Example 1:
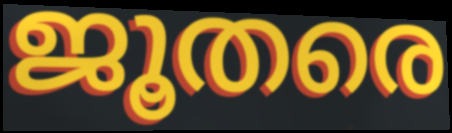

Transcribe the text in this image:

ജൂതരെ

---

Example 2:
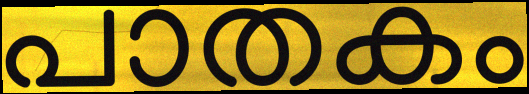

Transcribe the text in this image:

പാതകം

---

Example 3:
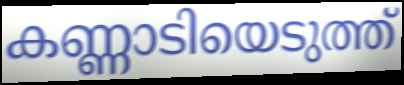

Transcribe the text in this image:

കണ്ണാടിയെടുത്ത്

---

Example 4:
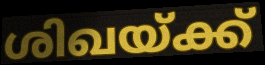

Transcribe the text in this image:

ശിഖയ്ക്ക്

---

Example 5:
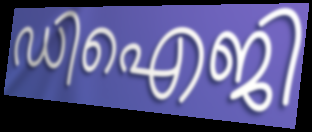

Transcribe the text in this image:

ഡിഐജി